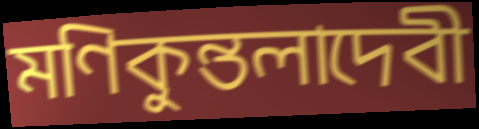
মণিকুন্তলাদেবী